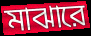
মাঝারে